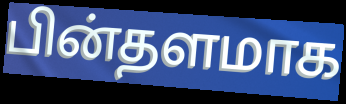
பின்தளமாக